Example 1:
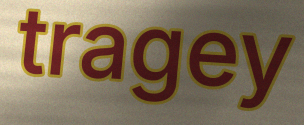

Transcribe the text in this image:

tragey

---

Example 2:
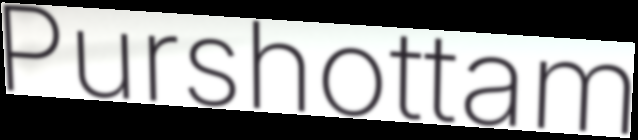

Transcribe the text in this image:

Purshottam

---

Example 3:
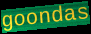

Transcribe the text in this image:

goondas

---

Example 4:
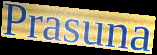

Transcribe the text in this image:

Prasuna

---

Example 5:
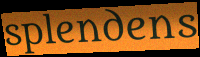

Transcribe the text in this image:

splendens